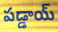
పడ్డాయ్